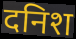
दनिश